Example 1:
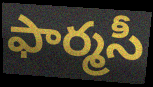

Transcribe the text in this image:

ఫార్మసీ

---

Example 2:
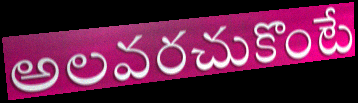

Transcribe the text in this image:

అలవరచుకొంటే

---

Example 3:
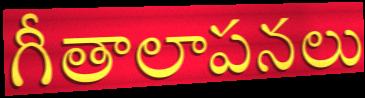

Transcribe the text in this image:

గీతాలాపనలు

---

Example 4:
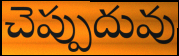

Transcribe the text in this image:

చెప్పుదువు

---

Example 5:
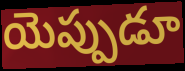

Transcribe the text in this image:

యెప్పుడూ